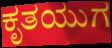
ಕೃತಯುಗ